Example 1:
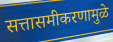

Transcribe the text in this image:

सत्तासमीकरणामुळे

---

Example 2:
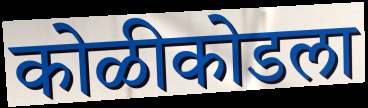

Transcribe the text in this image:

कोळीकोडला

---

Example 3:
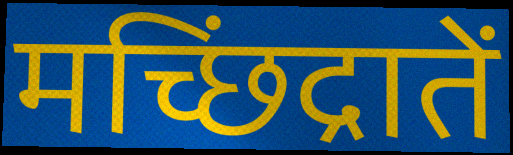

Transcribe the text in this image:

मच्छिंद्रातें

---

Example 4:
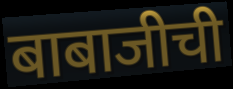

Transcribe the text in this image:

बाबाजीची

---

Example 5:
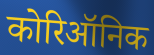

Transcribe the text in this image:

कोरिऑनिक